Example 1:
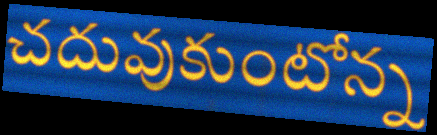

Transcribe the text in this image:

చదువుకుంటోన్న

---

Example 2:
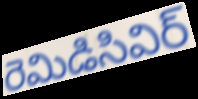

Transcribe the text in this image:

రెమిడిసివిర్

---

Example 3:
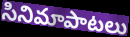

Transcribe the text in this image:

సినిమాపాటలు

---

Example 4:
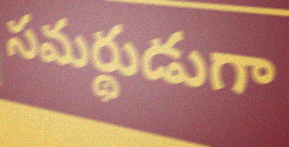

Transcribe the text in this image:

సమర్థుడుగా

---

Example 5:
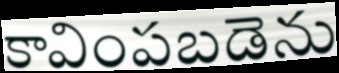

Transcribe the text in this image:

కావింపబడెను